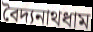
বৈদ্যনাথধাম